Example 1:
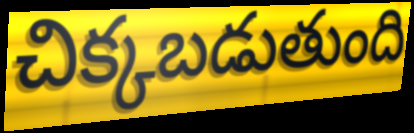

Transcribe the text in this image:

చిక్కబడుతుంది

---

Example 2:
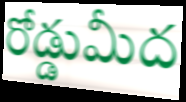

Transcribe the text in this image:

రోడ్డుమీద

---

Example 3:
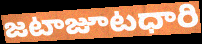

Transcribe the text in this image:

జటాజూటధారి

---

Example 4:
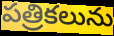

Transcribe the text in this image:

పత్రికలును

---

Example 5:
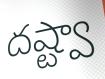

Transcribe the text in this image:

దష్ట్వా